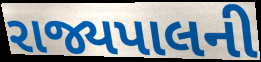
રાજ્યપાલની